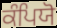
ਕੰਪਿਯੋ